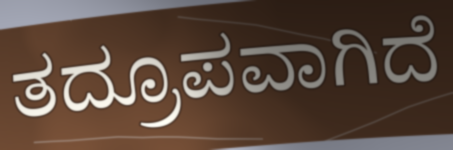
ತದ್ರೂಪವಾಗಿದೆ